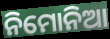
ନିମୋନିଆ